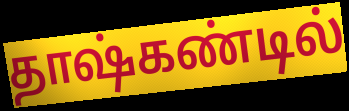
தாஷ்கண்டில்